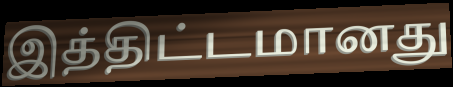
இத்திட்டமானது